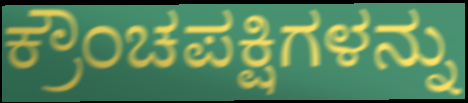
ಕ್ರೌಂಚಪಕ್ಷಿಗಳನ್ನು